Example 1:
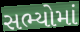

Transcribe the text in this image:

સભ્યોમાં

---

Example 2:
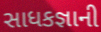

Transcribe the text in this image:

સાધકજ્ઞાની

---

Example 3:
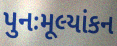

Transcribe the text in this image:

પુનઃમૂલ્યાંકન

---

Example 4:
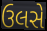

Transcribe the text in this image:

ઉલસે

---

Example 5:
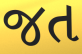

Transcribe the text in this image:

જત